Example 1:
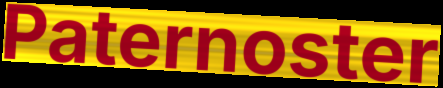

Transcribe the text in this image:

Paternoster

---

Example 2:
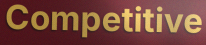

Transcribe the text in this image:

Competitive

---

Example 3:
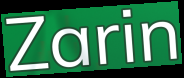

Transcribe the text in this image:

Zarin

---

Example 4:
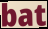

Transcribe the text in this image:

bat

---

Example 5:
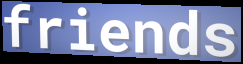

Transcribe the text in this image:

friends